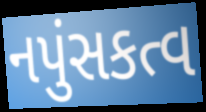
નપુંસકત્વ